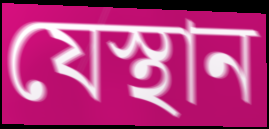
যেস্থান